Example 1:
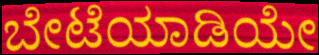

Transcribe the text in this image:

ಬೇಟೆಯಾಡಿಯೇ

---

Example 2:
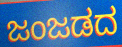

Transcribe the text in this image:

ಜಂಜಡದ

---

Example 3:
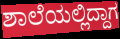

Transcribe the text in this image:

ಶಾಲೆಯಲ್ಲಿದ್ದಾಗ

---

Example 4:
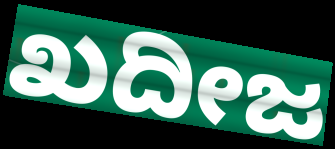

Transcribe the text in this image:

ಖದೀಜ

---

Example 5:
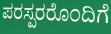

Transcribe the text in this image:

ಪರಸ್ಪರರೊಂದಿಗೆ